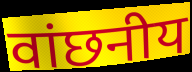
वांछनीय